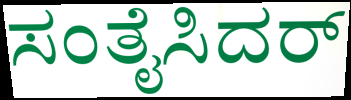
ಸಂತೈಸಿದರ್